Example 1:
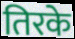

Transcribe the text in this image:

तिरके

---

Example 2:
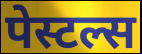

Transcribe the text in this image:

पेस्टल्स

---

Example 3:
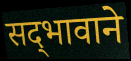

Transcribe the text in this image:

सद्‌भावाने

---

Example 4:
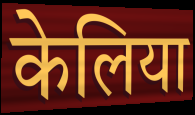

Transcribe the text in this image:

केलिया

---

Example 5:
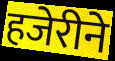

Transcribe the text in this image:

हजेरीने